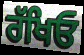
ਰੱਖਿਓ